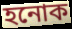
হনোক